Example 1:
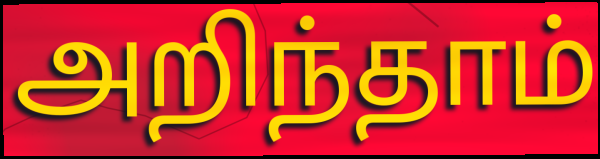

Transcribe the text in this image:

அறிந்தாம்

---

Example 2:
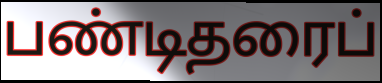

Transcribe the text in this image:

பண்டிதரைப்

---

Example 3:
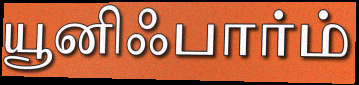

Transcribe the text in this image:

யூனிஃபார்ம்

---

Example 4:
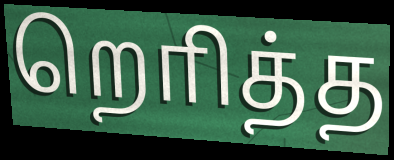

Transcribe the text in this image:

றெரித்த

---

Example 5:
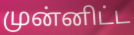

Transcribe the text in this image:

முன்னிட்ட